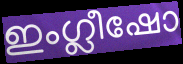
ഇംഗ്ലീഷോ